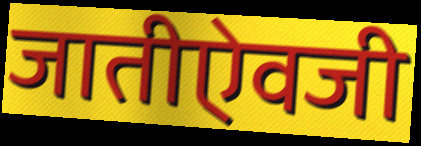
जातीऐवजी